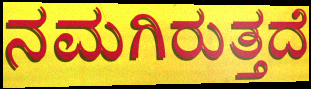
ನಮಗಿರುತ್ತದೆ